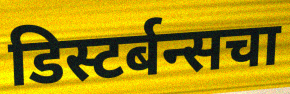
डिस्टर्बन्सचा